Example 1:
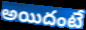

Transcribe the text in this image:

అయిదంటే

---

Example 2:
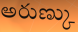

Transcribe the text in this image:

అరుణ్కు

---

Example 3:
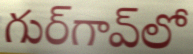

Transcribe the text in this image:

గుర్‌గావ్‌లో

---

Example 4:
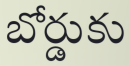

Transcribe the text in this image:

బోర్డుకు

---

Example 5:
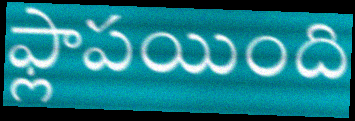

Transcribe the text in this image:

ఫ్లాపయింది